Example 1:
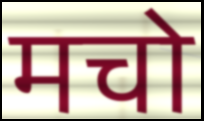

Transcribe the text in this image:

मचो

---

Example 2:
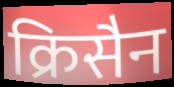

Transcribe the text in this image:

क्रिसैन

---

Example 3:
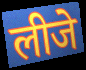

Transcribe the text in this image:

लीजे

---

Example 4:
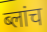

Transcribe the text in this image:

ब्लांच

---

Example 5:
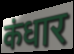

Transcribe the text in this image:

कंधार